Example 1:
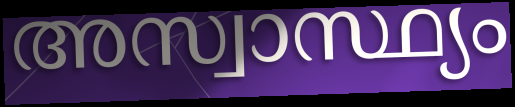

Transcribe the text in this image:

അസ്വാസ്ഥ്യം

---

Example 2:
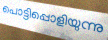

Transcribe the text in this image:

പൊട്ടിപ്പൊളിയുന്നു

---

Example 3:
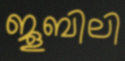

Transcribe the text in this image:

ജൂബിലി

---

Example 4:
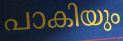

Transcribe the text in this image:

പാകിയും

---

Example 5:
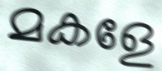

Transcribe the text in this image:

മകളേ